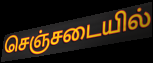
செஞ்சடையில்